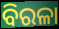
ବିରଳା